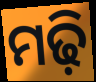
ମଢ଼ି